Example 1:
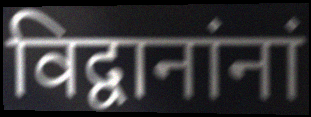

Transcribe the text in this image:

विद्वानांनां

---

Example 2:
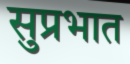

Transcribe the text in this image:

सुप्रभात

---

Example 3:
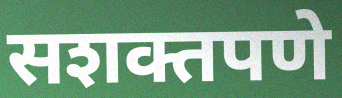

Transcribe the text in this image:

सशक्तपणे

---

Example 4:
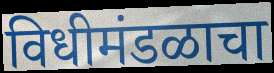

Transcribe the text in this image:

विधीमंडळाचा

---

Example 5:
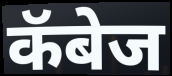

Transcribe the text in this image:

कॅबेज